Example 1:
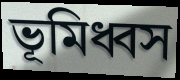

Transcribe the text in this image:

ভূমিধ্বস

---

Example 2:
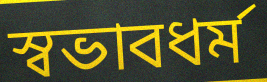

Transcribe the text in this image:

স্বভাবধর্ম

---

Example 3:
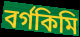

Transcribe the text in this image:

বর্গকিমি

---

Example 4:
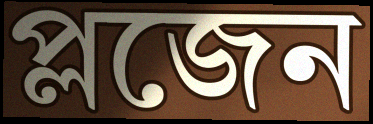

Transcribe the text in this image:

প্লজেন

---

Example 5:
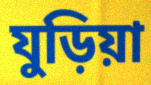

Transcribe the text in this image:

যুড়িয়া